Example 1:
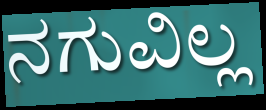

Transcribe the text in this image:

ನಗುವಿಲ್ಲ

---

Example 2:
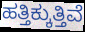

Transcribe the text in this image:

ಹತ್ತಿಕ್ಕುತ್ತಿವೆ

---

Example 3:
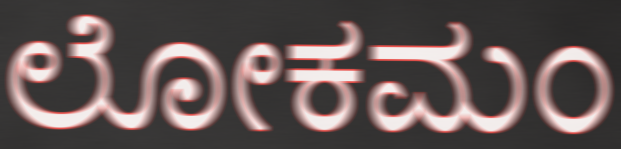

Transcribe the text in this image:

ಲೋಕಮಂ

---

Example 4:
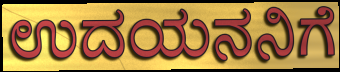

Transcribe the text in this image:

ಉದಯನನಿಗೆ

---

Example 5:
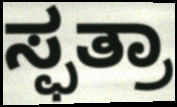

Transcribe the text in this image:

ಸ್ಫತ್ರಾ